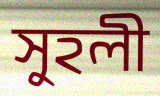
সুহলী